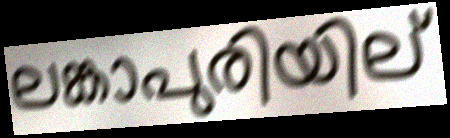
ലങ്കാപുരിയില്